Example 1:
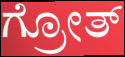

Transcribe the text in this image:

ಗ್ರೋತ್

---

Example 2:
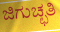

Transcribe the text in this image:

ಜಿಗುಚ್ಛತಿ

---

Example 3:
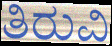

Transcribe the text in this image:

ತಿರುವಿ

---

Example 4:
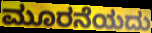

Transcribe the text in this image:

ಮೂರನೆಯದು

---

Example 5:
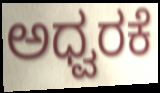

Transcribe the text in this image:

ಅಧ್ವರಕೆ